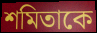
শমিতাকে